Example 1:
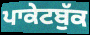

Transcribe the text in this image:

ਪਾਕੇਟਬੁੱਕ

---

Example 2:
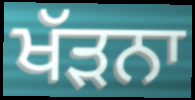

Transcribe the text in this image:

ਖੱੜਨਾ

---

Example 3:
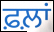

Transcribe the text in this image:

ਫ਼ਲ਼ਾਂ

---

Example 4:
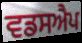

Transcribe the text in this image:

ਵਡਸਐਪ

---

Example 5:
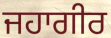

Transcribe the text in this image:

ਜਹਾਗੀਰ